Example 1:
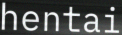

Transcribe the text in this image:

hentai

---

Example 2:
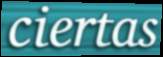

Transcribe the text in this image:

ciertas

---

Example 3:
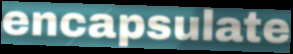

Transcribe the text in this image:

encapsulate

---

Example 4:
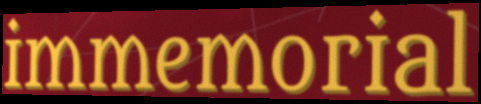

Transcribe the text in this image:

immemorial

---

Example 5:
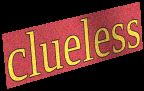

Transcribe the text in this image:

clueless